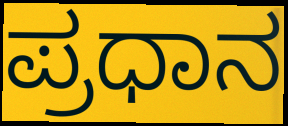
ಪ್ರಧಾನ